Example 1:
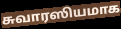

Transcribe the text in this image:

சுவாரஸியமாக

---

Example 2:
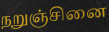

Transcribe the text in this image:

நறுஞ்சினை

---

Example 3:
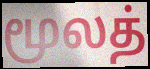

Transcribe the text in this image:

மூலத்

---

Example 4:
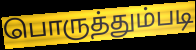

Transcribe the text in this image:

பொருத்தும்படி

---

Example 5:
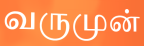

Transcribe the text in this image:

வருமுன்